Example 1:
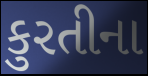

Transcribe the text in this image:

કુરતીના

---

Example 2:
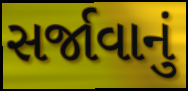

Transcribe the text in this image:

સર્જાવાનું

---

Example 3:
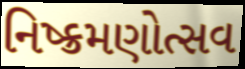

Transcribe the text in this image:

નિષ્ક્રમણોત્સવ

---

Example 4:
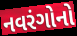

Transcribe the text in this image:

નવરંગોનો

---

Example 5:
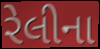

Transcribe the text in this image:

રેલીના